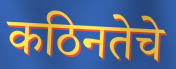
कठिनतेचे